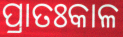
ପ୍ରାତଃକାଳ